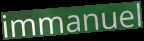
immanuel